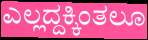
ಎಲ್ಲದ್ದಕ್ಕಿಂತಲೂ